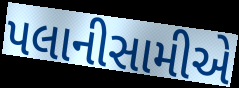
પલાનીસામીએ